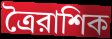
ত্রৈরাশিক